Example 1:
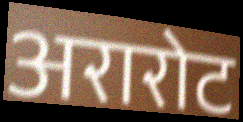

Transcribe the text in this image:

अरारोट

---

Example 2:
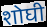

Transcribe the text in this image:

शोघी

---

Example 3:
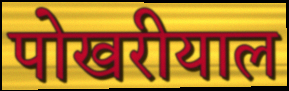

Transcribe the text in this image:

पोखरीयाल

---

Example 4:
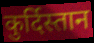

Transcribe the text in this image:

कुर्दिस्तान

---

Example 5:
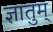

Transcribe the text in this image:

ज्ञातुम्